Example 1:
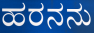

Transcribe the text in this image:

ಹರನನು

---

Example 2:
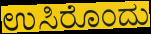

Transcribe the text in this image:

ಉಸಿರೊಂದು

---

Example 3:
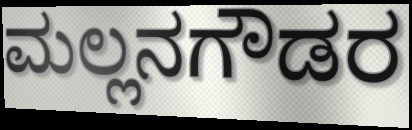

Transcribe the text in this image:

ಮಲ್ಲನಗೌಡರ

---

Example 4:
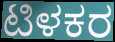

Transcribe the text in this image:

ಟಿಳಕರ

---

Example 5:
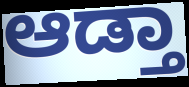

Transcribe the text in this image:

ಆಡ್ತಾ